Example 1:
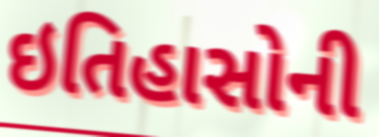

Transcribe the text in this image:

ઇતિહાસોની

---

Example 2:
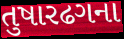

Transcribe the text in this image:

તુષારઢગના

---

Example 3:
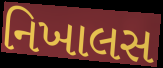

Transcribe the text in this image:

નિખાલસ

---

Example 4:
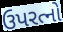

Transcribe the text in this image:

ઉપરત્નો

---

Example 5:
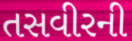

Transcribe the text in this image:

તસવીરની